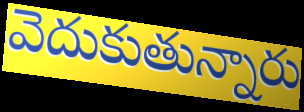
వెదుకుతున్నారు